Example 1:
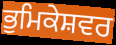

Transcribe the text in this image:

ਭੁਮਿਕੇਸ਼ਵਰ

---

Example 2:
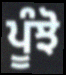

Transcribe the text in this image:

ਪੂੰਝੋ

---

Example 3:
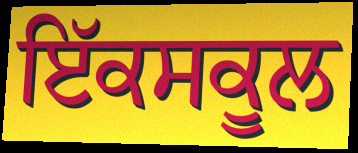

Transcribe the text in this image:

ਇੱਕਸਕੂਲ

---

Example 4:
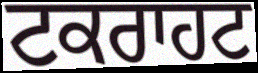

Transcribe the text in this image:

ਟਕਰਾਹਟ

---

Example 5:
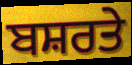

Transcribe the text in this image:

ਬਸ਼ਰਤੇ